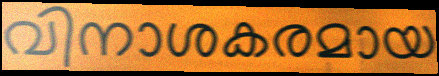
വിനാശകരമായ